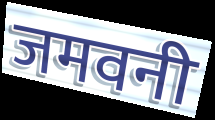
जमवनी